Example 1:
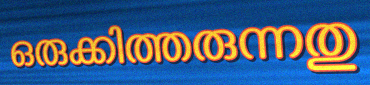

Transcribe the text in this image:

ഒരുക്കിത്തരുന്നതു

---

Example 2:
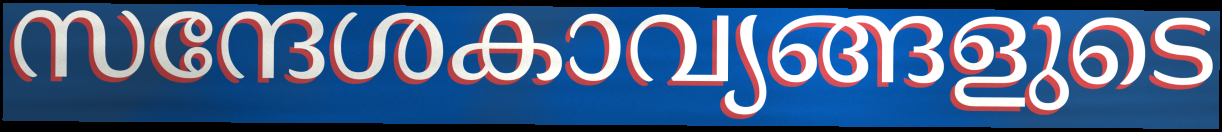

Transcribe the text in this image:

സന്ദേശകാവ്യങ്ങളുടെ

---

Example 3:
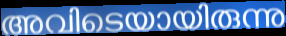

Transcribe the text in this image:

അവിടെയായിരുന്നു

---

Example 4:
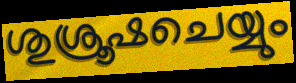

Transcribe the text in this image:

ശുശ്രൂഷചെയ്യും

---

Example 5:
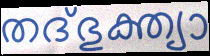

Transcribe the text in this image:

തദ്ഭുക്ത്യാ